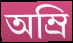
অম্রি